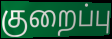
குறைப்பு